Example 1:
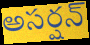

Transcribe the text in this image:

అసర్షన్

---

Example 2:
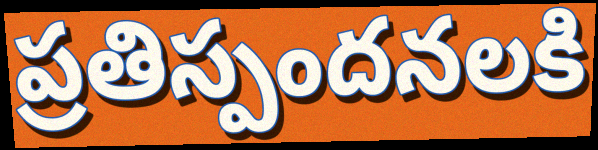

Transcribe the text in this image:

ప్రతిస్పందనలకి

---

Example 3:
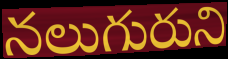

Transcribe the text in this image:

నలుగురుని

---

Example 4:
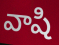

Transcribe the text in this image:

వాషి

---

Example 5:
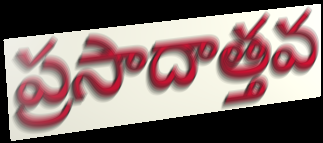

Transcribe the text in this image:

ప్రసాదాత్తవ